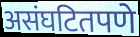
असंघटितपणे